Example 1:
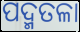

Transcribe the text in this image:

ପଦ୍ମତଳା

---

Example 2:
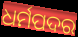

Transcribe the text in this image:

ଧର୍ମପଦର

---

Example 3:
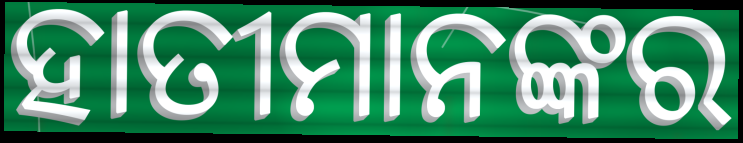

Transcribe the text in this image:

ହାତୀମାନଙ୍କର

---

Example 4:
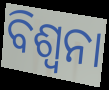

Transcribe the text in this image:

ବିଶ୍ୱନା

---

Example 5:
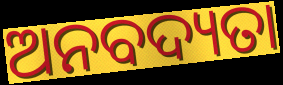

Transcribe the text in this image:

ଅନବଦ୍ୟତା